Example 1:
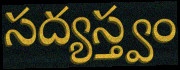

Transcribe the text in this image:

సద్యస్త్వం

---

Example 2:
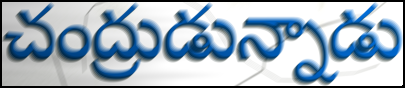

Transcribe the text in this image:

చంద్రుడున్నాడు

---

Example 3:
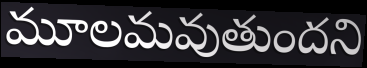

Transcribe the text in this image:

మూలమవుతుందని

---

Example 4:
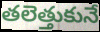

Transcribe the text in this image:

తలెత్తుకునే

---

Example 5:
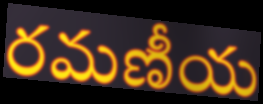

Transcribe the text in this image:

రమణీయ